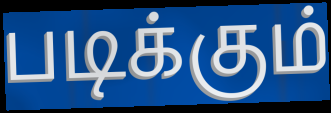
படிக்கும்